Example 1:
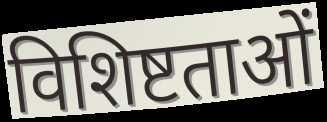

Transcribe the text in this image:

विशिष्टताओं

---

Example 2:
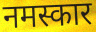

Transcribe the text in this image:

नमस्कार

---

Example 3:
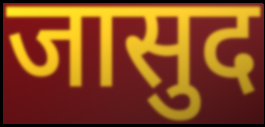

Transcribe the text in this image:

जासुद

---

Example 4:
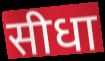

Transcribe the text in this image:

सीधा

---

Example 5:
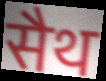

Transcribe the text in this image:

सैथ